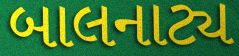
બાલનાટ્ય